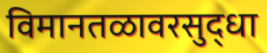
विमानतळावरसुद्धा